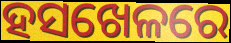
ହସଖେଳରେ